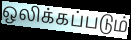
ஒலிக்கப்படும்